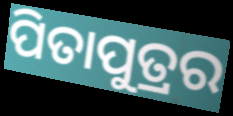
ପିତାପୁତ୍ରର